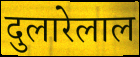
दुलारेलाल